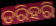
ଡରିହରି